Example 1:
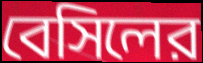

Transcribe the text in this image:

বেসিলের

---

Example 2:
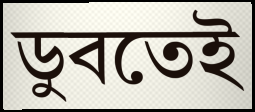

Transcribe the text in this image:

ডুবতেই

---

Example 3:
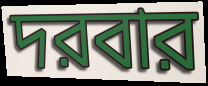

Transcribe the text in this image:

দরবার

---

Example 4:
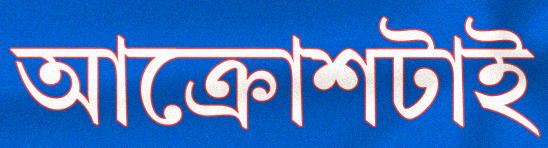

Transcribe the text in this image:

আক্রোশটাই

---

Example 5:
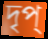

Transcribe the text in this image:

দৃপ্